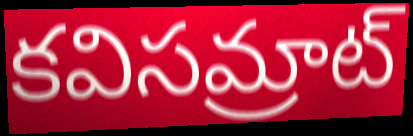
కవిసమ్రాట్